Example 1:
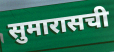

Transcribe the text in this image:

सुमारासची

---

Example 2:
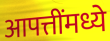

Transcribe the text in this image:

आपत्तींमध्ये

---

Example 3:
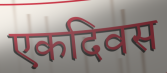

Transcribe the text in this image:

एकदिवस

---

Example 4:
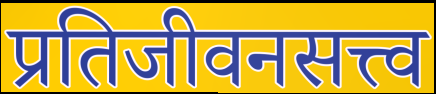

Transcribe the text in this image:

प्रतिजीवनसत्त्व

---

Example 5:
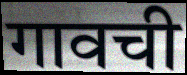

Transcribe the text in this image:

गावची